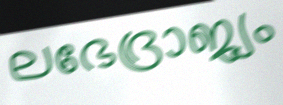
ലഭേദ്രാജ്യം